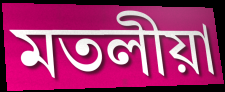
মতলীয়া